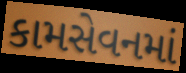
કામસેવનમાં